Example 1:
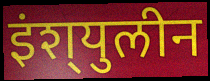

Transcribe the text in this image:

इंश्युलीन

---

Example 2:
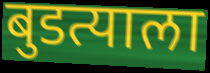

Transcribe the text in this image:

बुडत्याला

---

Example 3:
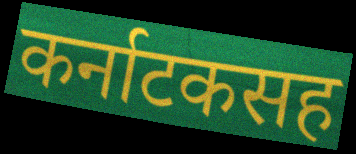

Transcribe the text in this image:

कर्नाटकसह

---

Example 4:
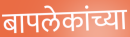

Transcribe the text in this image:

बापलेकांच्या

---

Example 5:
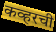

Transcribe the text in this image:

कव्हरची